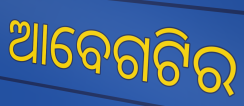
ଆବେଗଟିର